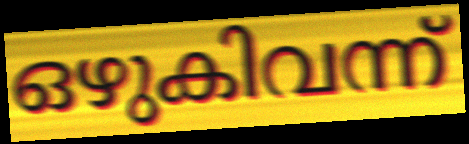
ഒഴുകിവന്ന്